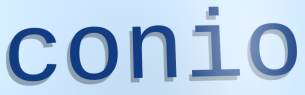
conio